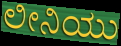
ಲೀನಿಯು